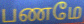
பணமே